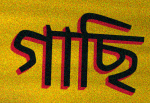
গাছি